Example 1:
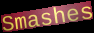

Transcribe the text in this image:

Smashes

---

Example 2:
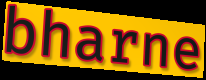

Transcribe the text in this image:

bharne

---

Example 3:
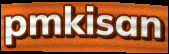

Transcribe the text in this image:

pmkisan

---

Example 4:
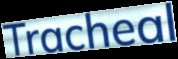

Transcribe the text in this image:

Tracheal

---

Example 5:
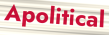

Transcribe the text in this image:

Apolitical